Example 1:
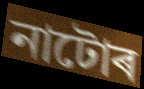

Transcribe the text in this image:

নাটোৰ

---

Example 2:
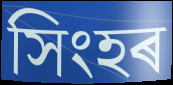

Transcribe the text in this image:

সিংহৰ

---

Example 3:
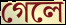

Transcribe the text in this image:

গেলে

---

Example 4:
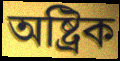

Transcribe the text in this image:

অষ্ট্ৰিক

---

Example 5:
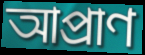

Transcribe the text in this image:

আপ্ৰাণ